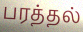
பரத்தல்